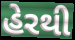
હેરથી